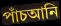
পাঁচআনি